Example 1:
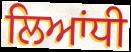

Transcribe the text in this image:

ਲਿਆਂਧੀ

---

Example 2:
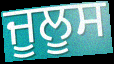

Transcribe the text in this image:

ਜੂਲੂਸ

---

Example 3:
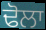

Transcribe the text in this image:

ਢੋਲਾ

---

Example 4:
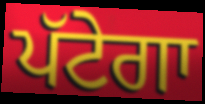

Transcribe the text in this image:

ਪੱਟੇਗਾ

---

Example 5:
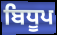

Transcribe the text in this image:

ਬਿਧੂਪ